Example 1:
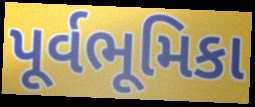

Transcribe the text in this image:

પૂર્વભૂમિકા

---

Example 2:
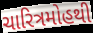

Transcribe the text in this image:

ચારિત્રમોહથી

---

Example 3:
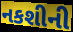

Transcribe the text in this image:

નકશીની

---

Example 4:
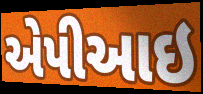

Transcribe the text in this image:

એપીઆઇ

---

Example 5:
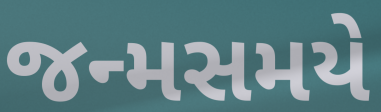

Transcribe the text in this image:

જન્મસમયે